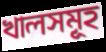
খালসমূহ